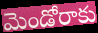
మెండోరాకు